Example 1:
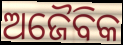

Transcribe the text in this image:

ଅଜୈବିକ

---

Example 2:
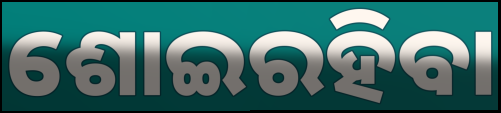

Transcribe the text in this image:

ଶୋଇରହିବା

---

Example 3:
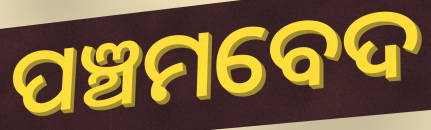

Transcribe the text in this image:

ପଞ୍ଚମବେଦ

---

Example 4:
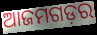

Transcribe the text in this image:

ଆଜମଗଡ଼ର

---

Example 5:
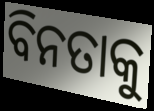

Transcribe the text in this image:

ବିନତାକୁ